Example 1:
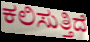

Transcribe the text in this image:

ಕಲಿಸುತ್ತಿದೆ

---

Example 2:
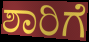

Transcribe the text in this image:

ಶಾರಿಗೆ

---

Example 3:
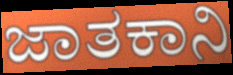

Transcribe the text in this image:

ಜಾತಕಾನಿ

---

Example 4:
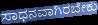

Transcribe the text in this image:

ಸಾಧನವಾಗಿರಬೇಕು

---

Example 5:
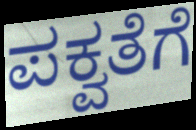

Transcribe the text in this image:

ಪಕ್ವತೆಗೆ